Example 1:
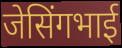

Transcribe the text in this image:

जेसिंगभाई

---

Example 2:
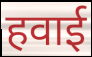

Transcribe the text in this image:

हवाई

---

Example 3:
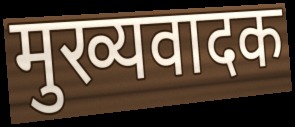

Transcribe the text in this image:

मुख्यवादक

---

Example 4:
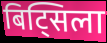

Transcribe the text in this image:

बिट्सिला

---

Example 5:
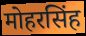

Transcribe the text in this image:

मोहरसिंह